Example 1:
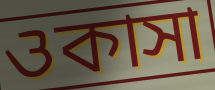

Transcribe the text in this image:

ওকাসা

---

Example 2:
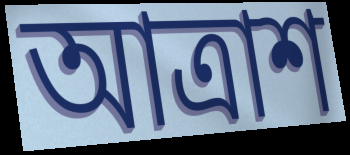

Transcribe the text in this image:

আত্রাশ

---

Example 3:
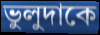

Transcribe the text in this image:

ভুলুদাকে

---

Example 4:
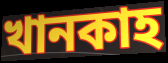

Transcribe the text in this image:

খানকাহ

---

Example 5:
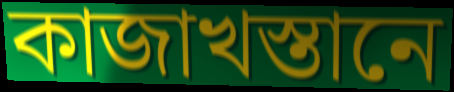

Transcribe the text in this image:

কাজাখস্তানে